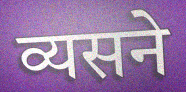
व्यसने